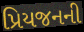
પ્રિયજનની